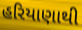
હરિયાણાથી